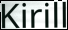
Kirill